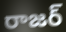
రాజర్